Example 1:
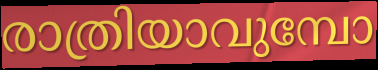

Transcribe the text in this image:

രാത്രിയാവുമ്പോ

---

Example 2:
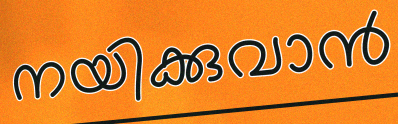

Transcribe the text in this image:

നയിക്കുവാൻ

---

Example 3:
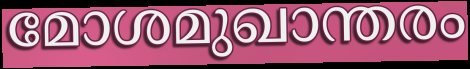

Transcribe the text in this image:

മോശമുഖാന്തരം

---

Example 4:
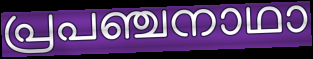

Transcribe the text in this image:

പ്രപഞ്ചനാഥാ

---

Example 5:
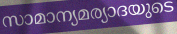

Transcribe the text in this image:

സാമാന്യമര്യാദയുടെ